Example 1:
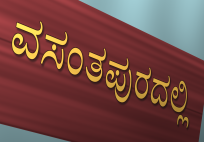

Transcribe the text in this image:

ವಸಂತಪುರದಲ್ಲಿ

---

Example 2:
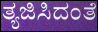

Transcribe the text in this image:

ತ್ಯಜಿಸಿದಂತೆ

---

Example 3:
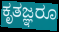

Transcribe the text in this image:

ಕೃತಜ್ಞರೂ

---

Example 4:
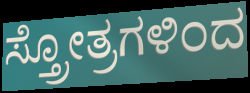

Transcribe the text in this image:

ಸ್ತ್ರೋತ್ರಗಳಿಂದ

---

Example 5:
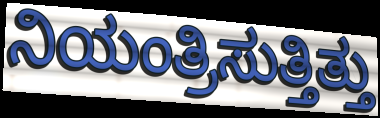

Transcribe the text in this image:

ನಿಯಂತ್ರಿಸುತ್ತಿತ್ತು